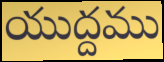
యుద్దము